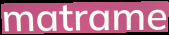
matrame